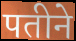
पतीने